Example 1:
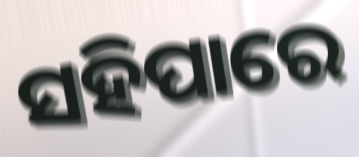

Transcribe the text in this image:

ସହିପାରେ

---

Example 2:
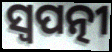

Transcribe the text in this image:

ସ୍ୱପତ୍ନୀ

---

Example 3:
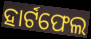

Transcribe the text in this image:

ହାର୍ଟଫେଲ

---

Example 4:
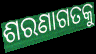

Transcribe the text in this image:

ଶରଣାଗତକୁ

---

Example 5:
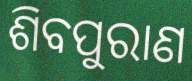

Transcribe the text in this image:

ଶିବପୁରାଣ